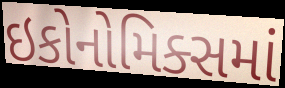
ઇકોનોમિક્સમાં